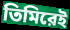
তিমিরেই